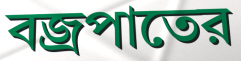
বজ্রপাতের